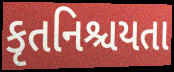
કૃતનિશ્ચયતા